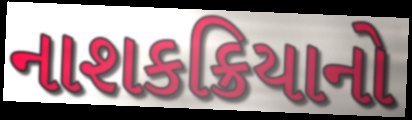
નાશકક્રિયાનો